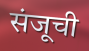
संजूची